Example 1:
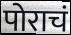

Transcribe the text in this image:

पोराचं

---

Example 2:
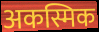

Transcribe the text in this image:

अकस्मिक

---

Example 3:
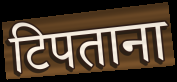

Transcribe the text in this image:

टिपताना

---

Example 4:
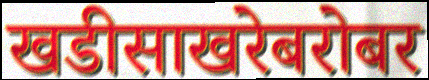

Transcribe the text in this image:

खडीसाखरेबरोबर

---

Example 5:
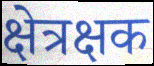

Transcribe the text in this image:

क्षेत्रक्षक